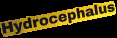
Hydrocephalus